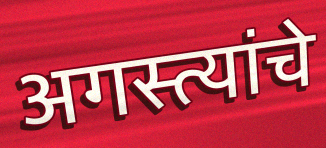
अगस्त्यांचे